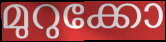
മുറുക്കോ